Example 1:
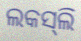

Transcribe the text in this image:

ଲକସ୍‍ଲି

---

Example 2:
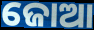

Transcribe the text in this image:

ଜୋଆ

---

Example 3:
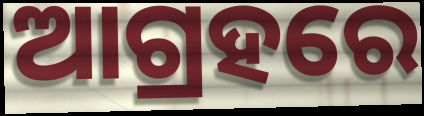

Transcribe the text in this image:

ଆଗ୍ରହରେ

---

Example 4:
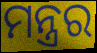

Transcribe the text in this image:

ମନ୍ତ୍ରର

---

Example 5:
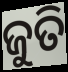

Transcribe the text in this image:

ଜୁତି